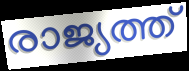
രാജ്യത്ത്